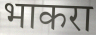
भाकरा